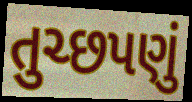
તુચ્છપણું